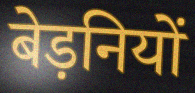
बेड़नियों